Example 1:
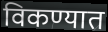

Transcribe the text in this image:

विकण्यात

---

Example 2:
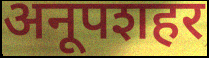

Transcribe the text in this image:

अनूपशहर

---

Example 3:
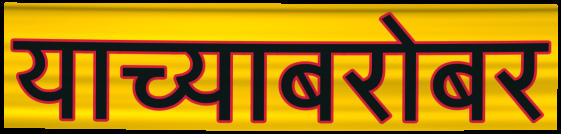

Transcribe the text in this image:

याच्याबरोबर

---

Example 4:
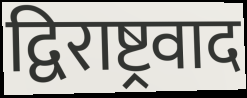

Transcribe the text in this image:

द्विराष्ट्रवाद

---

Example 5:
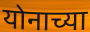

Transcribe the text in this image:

योनाच्या